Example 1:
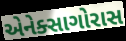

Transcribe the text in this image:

એનેક્સાગોરાસ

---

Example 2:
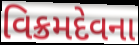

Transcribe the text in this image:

વિક્રમદેવના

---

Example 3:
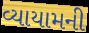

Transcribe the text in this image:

વ્યાયામની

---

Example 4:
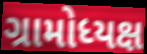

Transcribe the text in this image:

ગ્રામોધ્યક્ષ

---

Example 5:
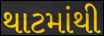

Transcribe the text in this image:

થાટમાંથી